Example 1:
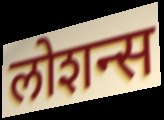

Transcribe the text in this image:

लोशन्स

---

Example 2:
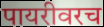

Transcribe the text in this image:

पायरीवरच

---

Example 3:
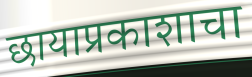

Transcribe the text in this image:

छायाप्रकाशाचा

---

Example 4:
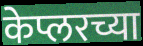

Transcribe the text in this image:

केप्लरच्या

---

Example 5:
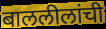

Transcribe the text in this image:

बाललीलांची